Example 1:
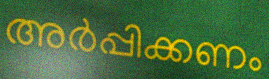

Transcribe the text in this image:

അർപ്പിക്കണം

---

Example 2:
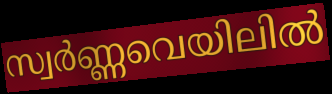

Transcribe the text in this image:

സ്വർണ്ണവെയിലിൽ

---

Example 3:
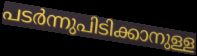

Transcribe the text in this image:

പടർന്നുപിടിക്കാനുള്ള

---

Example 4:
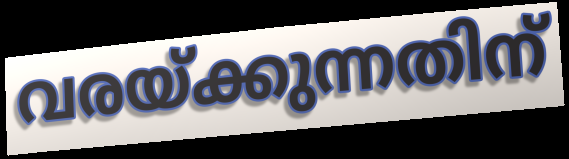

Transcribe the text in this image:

വരയ്ക്കുന്നതിന്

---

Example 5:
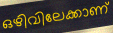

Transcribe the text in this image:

ഒഴിവിലേക്കാണ്